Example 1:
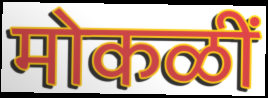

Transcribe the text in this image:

मोकळीं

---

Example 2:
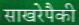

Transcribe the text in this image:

साखरेपैकी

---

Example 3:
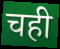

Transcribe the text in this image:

चही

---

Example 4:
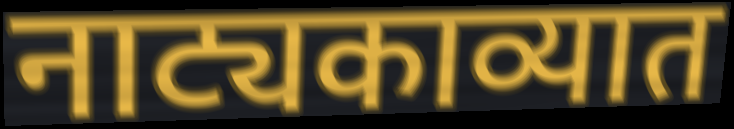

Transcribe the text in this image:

नाट्यकाव्यात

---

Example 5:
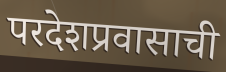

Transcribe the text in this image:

परदेशप्रवासाची